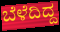
ಬೆಳೆದಿದ್ದ